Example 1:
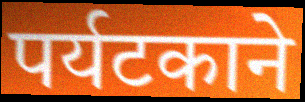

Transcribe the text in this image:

पर्यटकाने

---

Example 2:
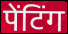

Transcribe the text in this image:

पेंटिंग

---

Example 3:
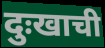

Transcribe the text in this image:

दुःखाची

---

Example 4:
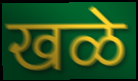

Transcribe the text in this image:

खळे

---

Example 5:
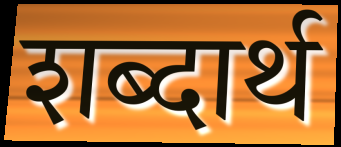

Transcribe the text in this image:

शब्दार्थ